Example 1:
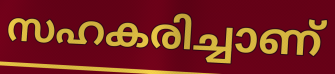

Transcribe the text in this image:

സഹകരിച്ചാണ്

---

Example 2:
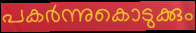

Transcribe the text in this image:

പകർന്നുകൊടുക്കും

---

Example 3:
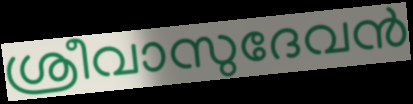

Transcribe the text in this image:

ശ്രീവാസുദേവൻ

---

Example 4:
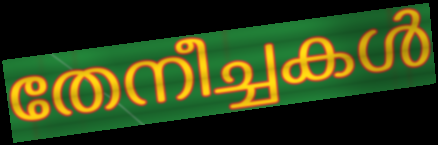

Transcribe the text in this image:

തേനീച്ചകൾ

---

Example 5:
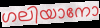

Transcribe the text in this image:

ഗലിയാനോ